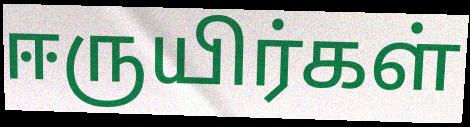
ஈருயிர்கள்